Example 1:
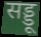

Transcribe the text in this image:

सड्डू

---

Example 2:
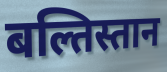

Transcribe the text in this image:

बल्तिस्तान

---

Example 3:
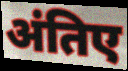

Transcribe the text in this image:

अंतिए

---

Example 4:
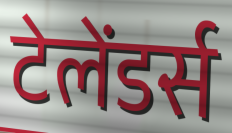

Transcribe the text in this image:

टेलेंडर्स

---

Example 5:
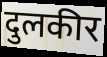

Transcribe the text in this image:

दुलकीर